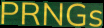
PRNGs